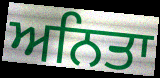
ਅਨਿਤਾ